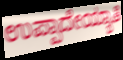
ಉಪ್ಪಾದೇಯ್ಯಾತಿ